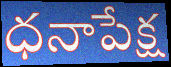
ధనాపేక్ష